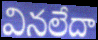
వినలేదా